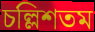
চল্লিশতম